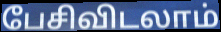
பேசிவிடலாம்